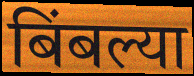
बिंबल्या